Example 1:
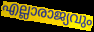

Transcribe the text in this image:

എല്ലാരാജ്യവും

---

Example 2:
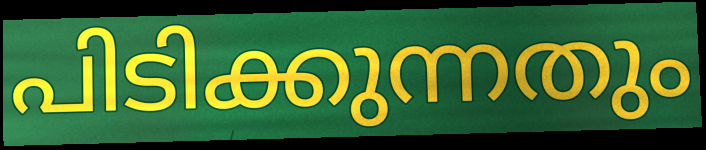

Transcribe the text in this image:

പിടിക്കുന്നതും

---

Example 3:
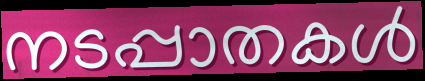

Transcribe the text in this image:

നടപ്പാതകൾ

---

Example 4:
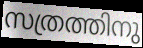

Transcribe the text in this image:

സത്രത്തിനു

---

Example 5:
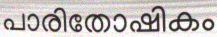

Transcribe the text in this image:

പാരിതോഷികം